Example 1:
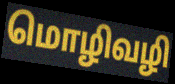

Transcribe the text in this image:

மொழிவழி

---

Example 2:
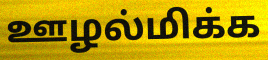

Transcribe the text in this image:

ஊழல்மிக்க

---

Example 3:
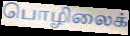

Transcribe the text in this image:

பொழிலைக்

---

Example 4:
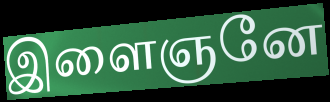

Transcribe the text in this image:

இளைஞனே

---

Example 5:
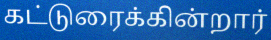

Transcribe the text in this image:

கட்டுரைக்கின்றார்